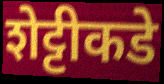
शेट्टीकडे